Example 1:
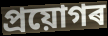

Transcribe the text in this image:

প্ৰয়োগৰ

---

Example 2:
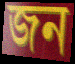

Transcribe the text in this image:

জন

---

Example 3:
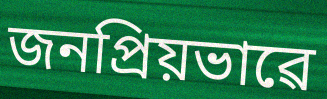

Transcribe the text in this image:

জনপ্ৰিয়ভাৱে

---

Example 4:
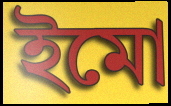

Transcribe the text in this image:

ইমো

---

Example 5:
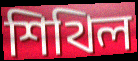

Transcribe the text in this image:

শিথিল